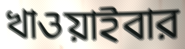
খাওয়াইবার